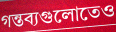
গন্তব্যগুলোতেও